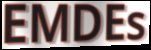
EMDEs